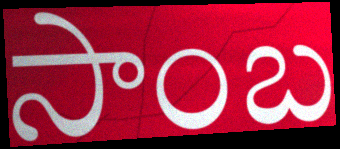
సాంబ